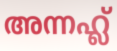
അന്നഹ്ല്